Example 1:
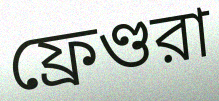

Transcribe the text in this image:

ফ্রেণ্ডরা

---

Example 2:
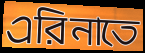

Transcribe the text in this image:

এরিনাতে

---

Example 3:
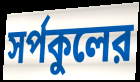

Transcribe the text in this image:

সর্পকুলের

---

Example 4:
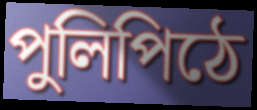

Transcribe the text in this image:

পুলিপিঠে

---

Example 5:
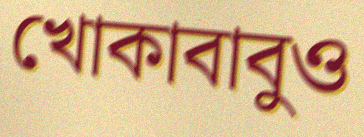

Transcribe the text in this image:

খোকাবাবুও